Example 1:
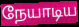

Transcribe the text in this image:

நேயாடிய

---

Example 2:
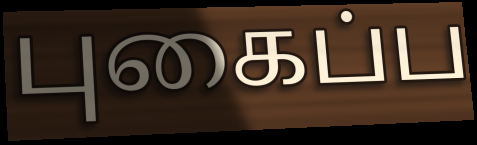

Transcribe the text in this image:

புகைப்ப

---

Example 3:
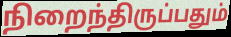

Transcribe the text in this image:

நிறைந்திருப்பதும்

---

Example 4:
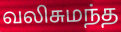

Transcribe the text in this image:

வலிசுமந்த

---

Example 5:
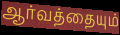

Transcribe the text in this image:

ஆர்வத்தையும்